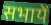
सभायें